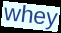
whey